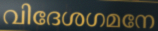
വിദേശഗമനേ